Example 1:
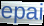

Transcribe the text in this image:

epai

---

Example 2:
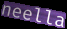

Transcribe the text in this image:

neella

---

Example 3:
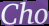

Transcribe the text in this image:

Cho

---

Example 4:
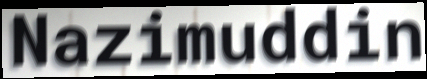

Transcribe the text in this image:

Nazimuddin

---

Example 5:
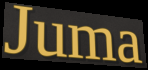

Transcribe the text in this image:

Juma